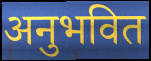
अनुभवित